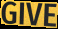
GIVE